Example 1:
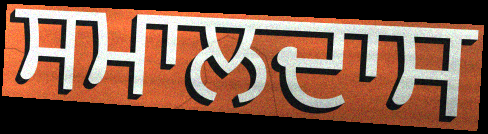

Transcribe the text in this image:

ਸਮਾਲਦਾਸ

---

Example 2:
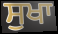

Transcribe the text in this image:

ਸੁਖਾ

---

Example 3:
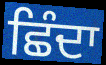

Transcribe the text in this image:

ਛਿੰਦਾ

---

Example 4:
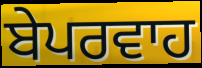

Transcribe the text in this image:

ਬੇਪਰਵਾਹ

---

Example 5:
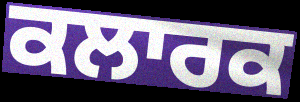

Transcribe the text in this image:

ਕਲਾਰਕ